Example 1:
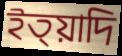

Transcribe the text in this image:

ইত্য়াদি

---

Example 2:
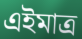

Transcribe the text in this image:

এইমাত্ৰ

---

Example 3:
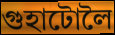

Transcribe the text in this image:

গুহাটোলৈ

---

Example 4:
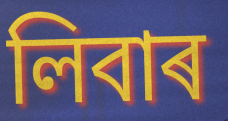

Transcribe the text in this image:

লিবাৰ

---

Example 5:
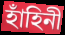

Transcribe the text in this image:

হাঁহিনী